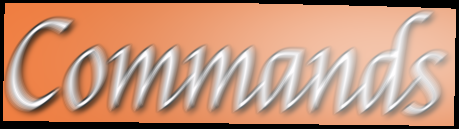
Commands